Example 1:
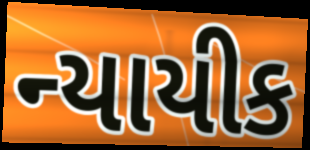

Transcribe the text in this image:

ન્યાયીક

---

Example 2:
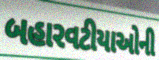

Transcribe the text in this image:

બહારવટીયાઓની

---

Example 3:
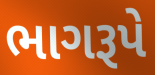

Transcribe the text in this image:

ભાગરૂપે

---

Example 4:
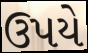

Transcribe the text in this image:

ઉપયે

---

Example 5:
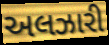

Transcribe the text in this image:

અલઝારી